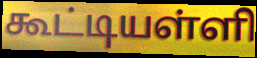
கூட்டியள்ளி